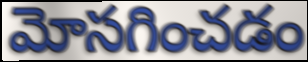
మోసగించడం